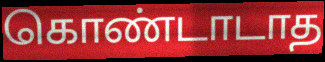
கொண்டாடாத